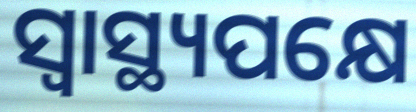
ସ୍ଵାସ୍ଥ୍ୟପକ୍ଷେ